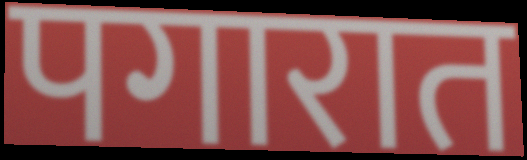
पगारात